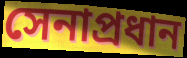
সেনাপ্রধান